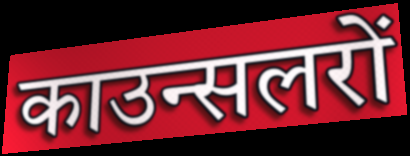
काउन्सलरों